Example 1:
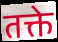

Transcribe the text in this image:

तक्ते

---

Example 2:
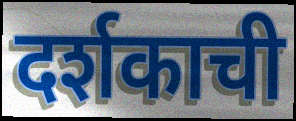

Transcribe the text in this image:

दर्शकाची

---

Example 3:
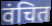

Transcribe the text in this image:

वंचित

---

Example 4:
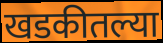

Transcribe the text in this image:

खडकीतल्या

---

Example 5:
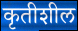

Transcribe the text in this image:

कृतीशील